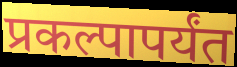
प्रकल्पापर्यंत